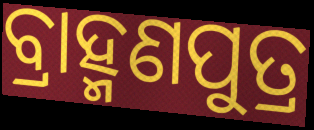
ବ୍ରାହ୍ମଣପୁତ୍ର